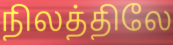
நிலத்திலே